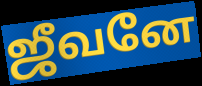
ஜீவனே